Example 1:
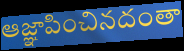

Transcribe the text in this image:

ఆజ్ఞాపించినదంతా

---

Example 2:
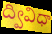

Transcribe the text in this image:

ద్వివిధా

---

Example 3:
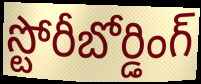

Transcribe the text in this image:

స్టోరీబోర్డింగ్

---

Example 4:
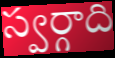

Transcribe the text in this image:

స్వర్గాది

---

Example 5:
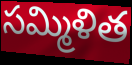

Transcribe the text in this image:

సమ్మిళిత